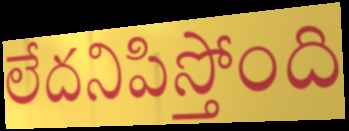
లేదనిపిస్తోంది